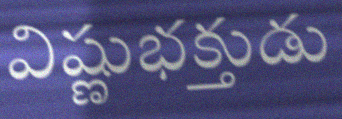
విష్ణుభక్తుడు